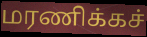
மரணிக்கச்